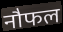
नौफल